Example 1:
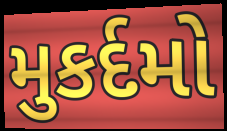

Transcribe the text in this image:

મુકર્દમો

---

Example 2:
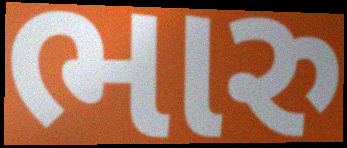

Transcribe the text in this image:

ભારુ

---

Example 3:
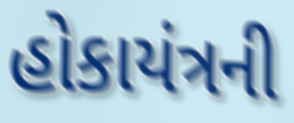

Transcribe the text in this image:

હોકાયંત્રની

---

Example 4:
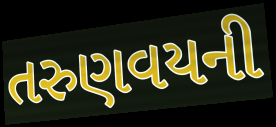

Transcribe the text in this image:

તરુણવયની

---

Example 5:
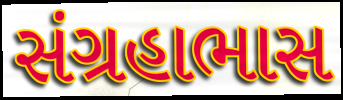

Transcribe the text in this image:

સંગ્રહાભાસ